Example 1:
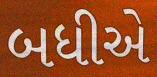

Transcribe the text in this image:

બધીએ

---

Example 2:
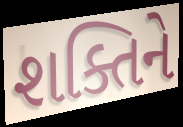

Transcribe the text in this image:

શક્તિને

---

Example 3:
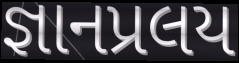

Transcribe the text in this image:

જ્ઞાનપ્રલય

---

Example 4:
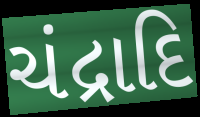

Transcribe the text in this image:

ચંદ્રાદિ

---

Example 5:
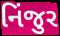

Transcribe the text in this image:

નિંજુર